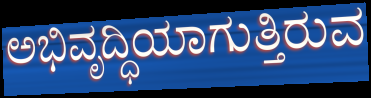
ಅಭಿವೃದ್ಧಿಯಾಗುತ್ತಿರುವ